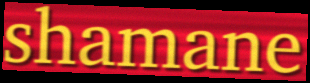
shamane